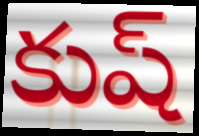
కుష్